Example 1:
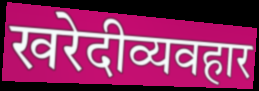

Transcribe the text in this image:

खरेदीव्यवहार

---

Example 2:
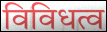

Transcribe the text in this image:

विविधत्व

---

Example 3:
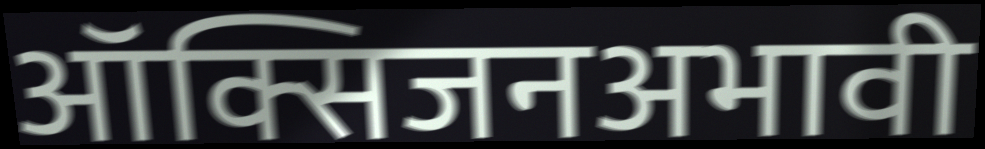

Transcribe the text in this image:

ऑक्सिजनअभावी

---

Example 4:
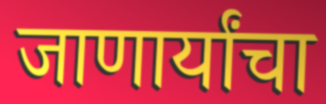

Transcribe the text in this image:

जाणार्यांचा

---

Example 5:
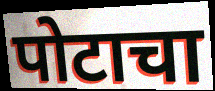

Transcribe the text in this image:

पोटाचा